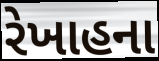
રેખાહના